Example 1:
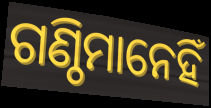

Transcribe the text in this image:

ଗଣ୍ଠିମାନେହିଁ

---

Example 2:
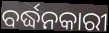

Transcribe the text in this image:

ବର୍ଦ୍ଧନକାରୀ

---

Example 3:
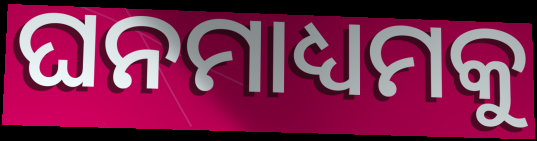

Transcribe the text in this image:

ଘନମାଧ୍ୟମକୁ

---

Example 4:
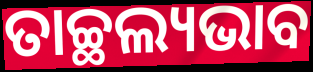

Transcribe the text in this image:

ତାଚ୍ଛଲ୍ୟଭାବ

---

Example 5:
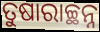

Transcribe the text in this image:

ତୁଷାରାଚ୍ଛନ୍ନ